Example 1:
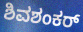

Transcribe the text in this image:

ಶಿವಶಂಕರ್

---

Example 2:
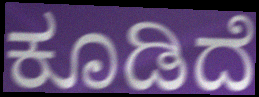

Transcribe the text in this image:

ಕೂಡಿದೆ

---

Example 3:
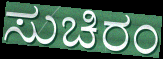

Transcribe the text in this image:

ಸುಚಿರಂ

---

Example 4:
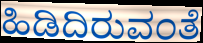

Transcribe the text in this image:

ಹಿಡಿದಿರುವಂತೆ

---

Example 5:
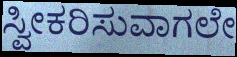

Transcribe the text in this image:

ಸ್ವೀಕರಿಸುವಾಗಲೇ